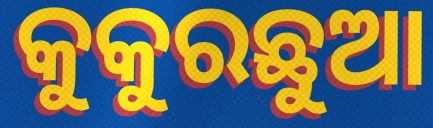
କୁକୁରଛୁଆ